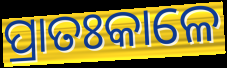
ପ୍ରାତଃକାଳେ